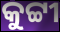
କୁଟ୍ଟୀ